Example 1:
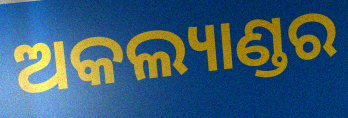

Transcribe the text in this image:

ଅକଲ୍ୟାଣ୍ଡର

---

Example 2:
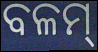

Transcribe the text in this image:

ବଳମ୍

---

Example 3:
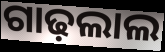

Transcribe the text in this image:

ଗାଢ଼ଲାଲ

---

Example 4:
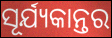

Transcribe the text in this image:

ସୂର୍ଯ୍ୟକାନ୍ତର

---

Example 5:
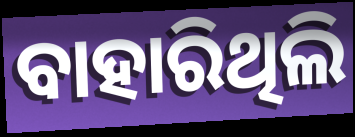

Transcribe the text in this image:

ବାହାରିଥିଲି